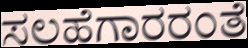
ಸಲಹೆಗಾರರಂತೆ